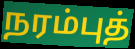
நரம்புத்